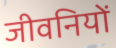
जीवनियों